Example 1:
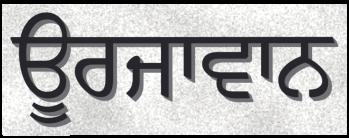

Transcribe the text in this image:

ਊਰਜਾਵਾਨ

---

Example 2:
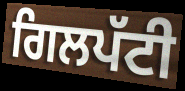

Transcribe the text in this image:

ਗਿਲਪੱਟੀ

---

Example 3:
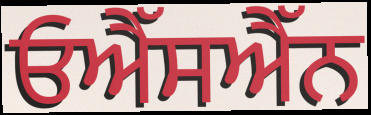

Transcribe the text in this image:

ਓਐੱਸਐੱਨ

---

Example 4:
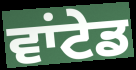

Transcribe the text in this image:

ਵਾਂਟੇਡ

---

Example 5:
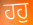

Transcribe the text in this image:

ਹਹੁ